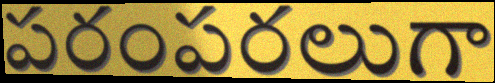
పరంపరలుగా